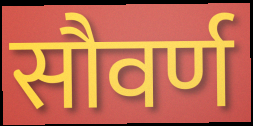
सौवर्ण